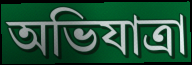
অভিযাত্রা